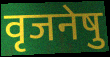
वृजनेषु